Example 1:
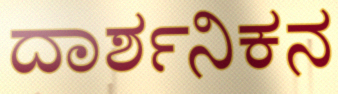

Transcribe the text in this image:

ದಾರ್ಶನಿಕನ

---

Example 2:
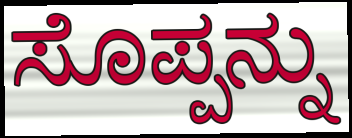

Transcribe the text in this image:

ಸೊಪ್ಪನ್ನು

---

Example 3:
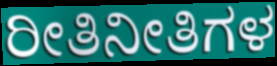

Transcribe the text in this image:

ರೀತಿನೀತಿಗಳ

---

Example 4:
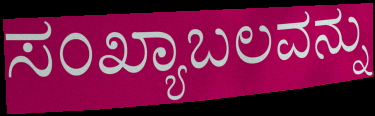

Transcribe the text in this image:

ಸಂಖ್ಯಾಬಲವನ್ನು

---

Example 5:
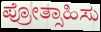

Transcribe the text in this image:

ಪ್ರೋತ್ಸಾಹಿಸು